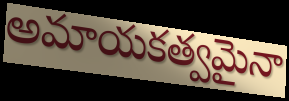
అమాయకత్వమైనా